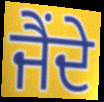
ਜੈਂਦੇ